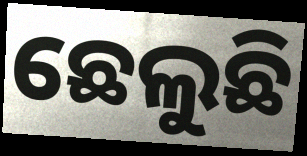
ଛେଲୁଛି